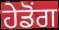
ਹੇਡੋਂਗ